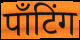
पाँटिंग